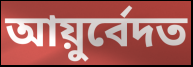
আয়ুৰ্বেদত